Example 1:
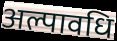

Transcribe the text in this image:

अल्पावधि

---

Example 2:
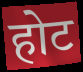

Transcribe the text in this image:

होट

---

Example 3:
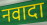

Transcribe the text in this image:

नवादा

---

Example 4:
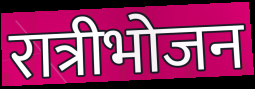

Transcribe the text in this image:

रात्रीभोजन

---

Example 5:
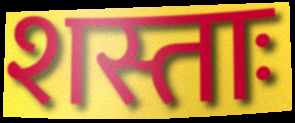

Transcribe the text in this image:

शस्ताः